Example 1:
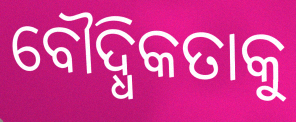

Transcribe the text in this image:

ବୌଦ୍ଧିକତାକୁ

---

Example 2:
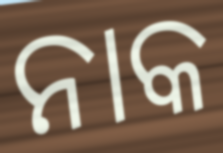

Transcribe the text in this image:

ନାକ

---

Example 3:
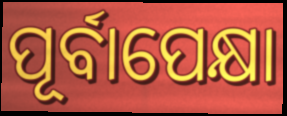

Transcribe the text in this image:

ପୂର୍ବାପେକ୍ଷା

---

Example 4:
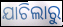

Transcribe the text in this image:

ଯାଚିଲାରୁ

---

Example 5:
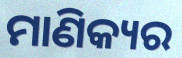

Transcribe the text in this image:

ମାଣିକ୍ୟର